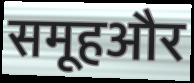
समूहऔर